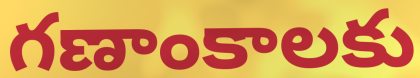
గణాంకాలకు